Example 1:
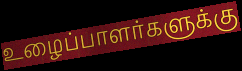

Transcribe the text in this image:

உழைப்பாளர்களுக்கு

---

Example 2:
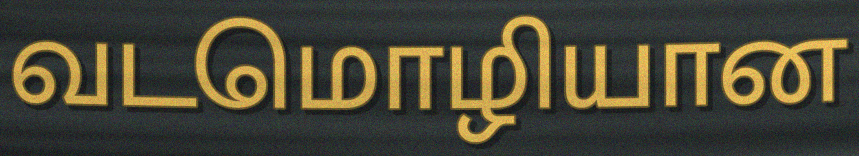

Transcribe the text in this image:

வடமொழியான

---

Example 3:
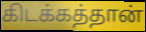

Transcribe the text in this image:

கிடக்கத்தான்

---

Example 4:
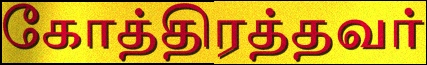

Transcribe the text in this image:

கோத்திரத்தவர்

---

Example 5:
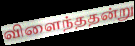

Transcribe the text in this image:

விளைந்ததன்று